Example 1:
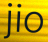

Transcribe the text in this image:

jio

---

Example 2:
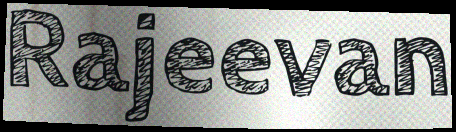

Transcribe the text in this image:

Rajeevan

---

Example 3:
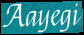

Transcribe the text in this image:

Aayegi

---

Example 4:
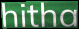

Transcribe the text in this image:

hitha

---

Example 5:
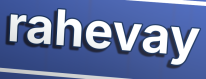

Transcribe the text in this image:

rahevay